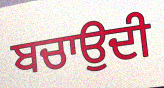
ਬਚਾਉਦੀ